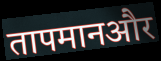
तापमानऔर